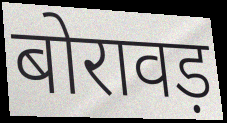
बोरावड़